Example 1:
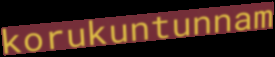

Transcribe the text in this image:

korukuntunnam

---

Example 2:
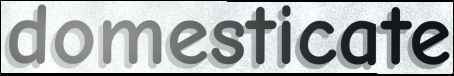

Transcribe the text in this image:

domesticate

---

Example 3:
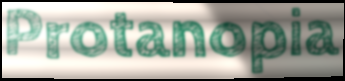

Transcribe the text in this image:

Protanopia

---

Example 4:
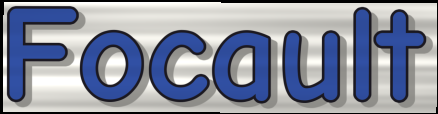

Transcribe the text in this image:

Focault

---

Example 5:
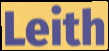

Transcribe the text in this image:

Leith